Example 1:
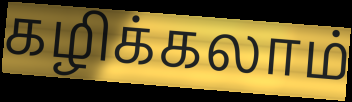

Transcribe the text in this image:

கழிக்கலாம்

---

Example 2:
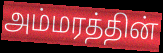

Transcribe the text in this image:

அம்மரத்தின்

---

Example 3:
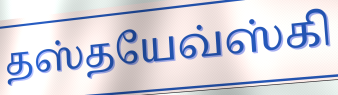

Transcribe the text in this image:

தஸ்தயேவ்ஸ்கி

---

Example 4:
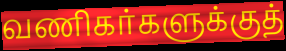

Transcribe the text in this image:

வணிகர்களுக்குத்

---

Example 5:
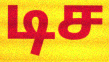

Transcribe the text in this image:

டிச